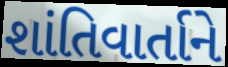
શાંતિવાર્તાને